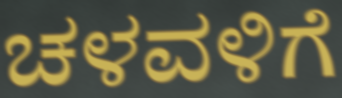
ಚಳವಳಿಗೆ